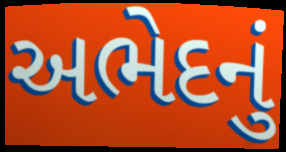
અભેદનું